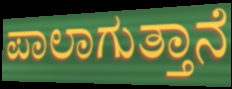
ಪಾಲಾಗುತ್ತಾನೆ